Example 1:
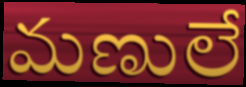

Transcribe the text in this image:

మణులే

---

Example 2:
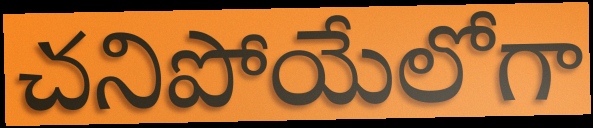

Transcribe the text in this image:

చనిపోయేలోగా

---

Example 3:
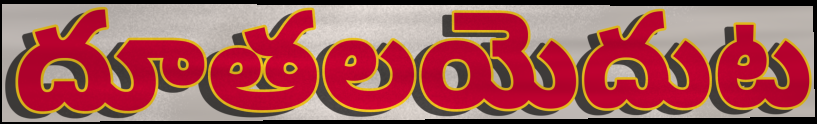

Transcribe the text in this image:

దూతలయెదుట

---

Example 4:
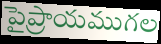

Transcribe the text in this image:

పైప్రాయముగల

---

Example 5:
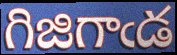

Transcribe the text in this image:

గిజిగాఁడ